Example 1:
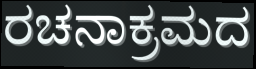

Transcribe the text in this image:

ರಚನಾಕ್ರಮದ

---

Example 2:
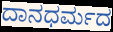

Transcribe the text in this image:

ದಾನಧರ್ಮದ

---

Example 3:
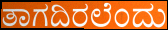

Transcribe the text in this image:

ತಾಗದಿರಲೆಂದು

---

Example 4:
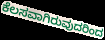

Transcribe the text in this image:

ಕೆಲಸವಾಗಿರುವುದರಿಂದ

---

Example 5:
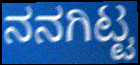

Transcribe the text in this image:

ನನಗಿಟ್ಟ